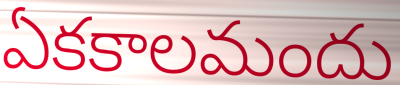
ఏకకాలమందు